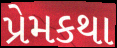
પ્રેમકથા